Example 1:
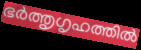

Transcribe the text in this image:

ഭർത്തൃഗൃഹത്തിൽ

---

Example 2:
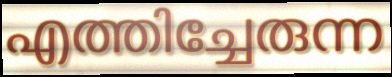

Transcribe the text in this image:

എത്തിച്ചേരുന്ന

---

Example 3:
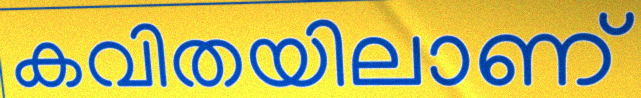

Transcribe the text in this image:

കവിതയിലാണ്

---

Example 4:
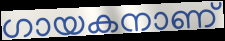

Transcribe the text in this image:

ഗായകനാണ്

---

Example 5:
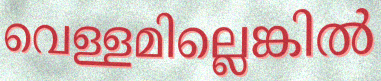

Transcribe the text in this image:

വെള്ളമില്ലെങ്കിൽ